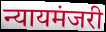
न्यायमंजरी